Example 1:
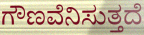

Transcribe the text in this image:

ಗೌಣವೆನಿಸುತ್ತದೆ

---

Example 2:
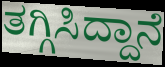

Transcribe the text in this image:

ತಗ್ಗಿಸಿದ್ದಾನೆ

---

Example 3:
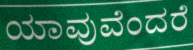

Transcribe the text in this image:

ಯಾವುವೆಂದರೆ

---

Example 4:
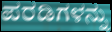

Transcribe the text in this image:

ಪರಡಿಗಳನ್ನು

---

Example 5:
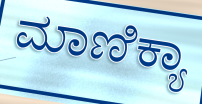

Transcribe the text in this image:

ಮಾಣಿಕ್ಯಾ